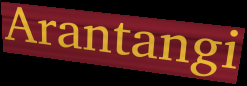
Arantangi